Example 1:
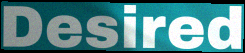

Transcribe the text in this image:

Desired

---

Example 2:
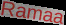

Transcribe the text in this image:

Ramaa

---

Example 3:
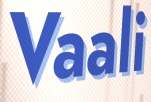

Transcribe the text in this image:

Vaali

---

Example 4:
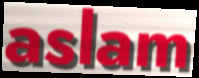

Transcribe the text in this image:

aslam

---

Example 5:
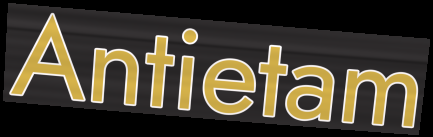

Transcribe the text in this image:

Antietam